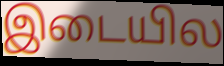
இடையில